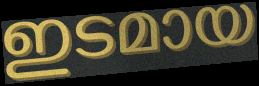
ഇടമായ